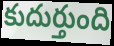
కుదుర్తుంది